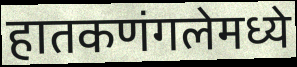
हातकणंगलेमध्ये